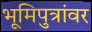
भूमिपुत्रांवर